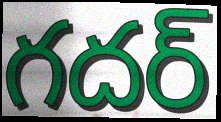
గదర్